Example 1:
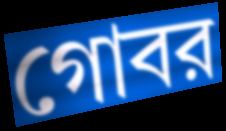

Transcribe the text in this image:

গোবর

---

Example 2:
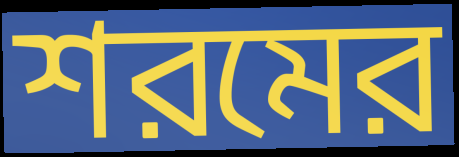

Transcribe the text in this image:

শরমের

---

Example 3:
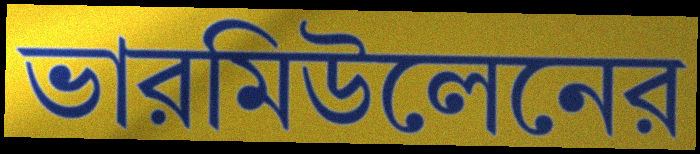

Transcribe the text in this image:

ভারমিউলেনের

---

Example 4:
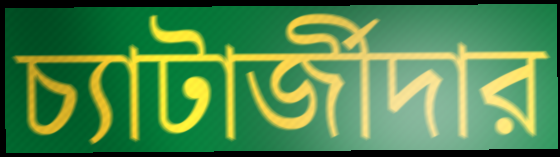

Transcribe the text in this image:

চ্যাটার্জীদার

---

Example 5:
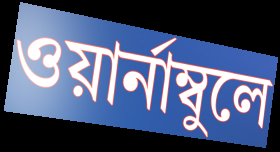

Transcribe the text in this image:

ওয়ার্নাম্বুলে